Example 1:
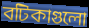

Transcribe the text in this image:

বটিকাগুলো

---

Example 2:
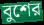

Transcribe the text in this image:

বুশের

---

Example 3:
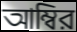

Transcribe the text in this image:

আম্বির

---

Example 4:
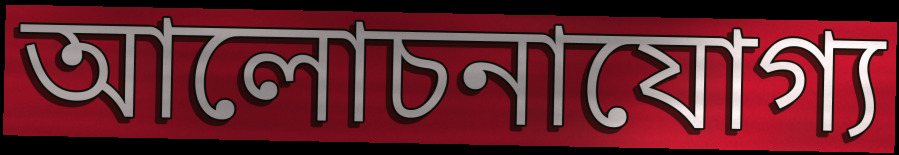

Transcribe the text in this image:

আলোচনাযোগ্য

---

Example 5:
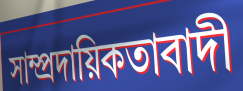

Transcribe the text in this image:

সাম্প্রদায়িকতাবাদী